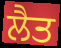
ਲੈਤ